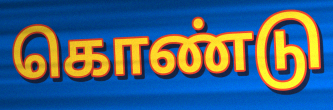
கொண்டு